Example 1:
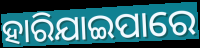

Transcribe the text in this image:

ହାରିଯାଇପାରେ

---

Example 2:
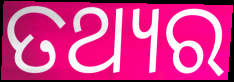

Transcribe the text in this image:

ତଥ୍ୟର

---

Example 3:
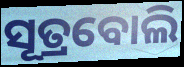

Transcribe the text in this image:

ସୂତ୍ରବୋଲି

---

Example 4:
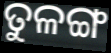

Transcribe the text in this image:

ତୁଳଙ୍ଗ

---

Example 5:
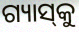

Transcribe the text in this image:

ଗ୍ୟାସ୍‌କୁ